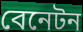
বেনেটন